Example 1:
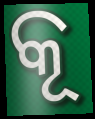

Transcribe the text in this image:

କୂ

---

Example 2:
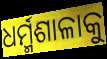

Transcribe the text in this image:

ଧର୍ମ୍ମଶାଳାକୁ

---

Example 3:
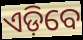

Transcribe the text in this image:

ଏଡ଼ିବେ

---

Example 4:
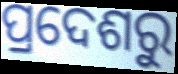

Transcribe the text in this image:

ପ୍ରଦେଶରୁ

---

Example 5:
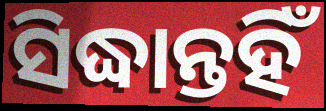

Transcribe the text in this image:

ସିଦ୍ଧାନ୍ତହିଁ